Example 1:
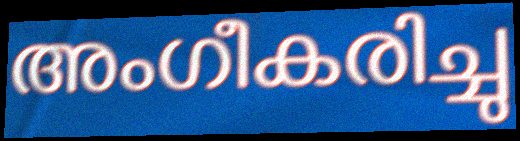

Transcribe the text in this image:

അംഗീകരിച്ചു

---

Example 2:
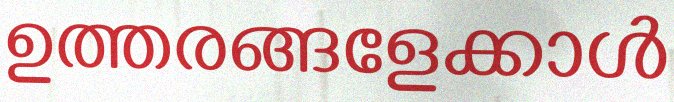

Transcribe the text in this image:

ഉത്തരങ്ങളേക്കാൾ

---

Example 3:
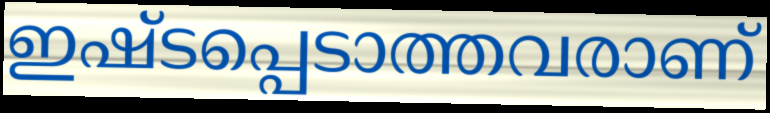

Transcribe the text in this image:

ഇഷ്ടപ്പെടാത്തവരാണ്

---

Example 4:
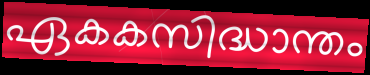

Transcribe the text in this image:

ഏകകസിദ്ധാന്തം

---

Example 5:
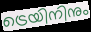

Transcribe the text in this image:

ട്രെയിനിനും